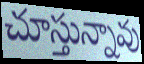
చూస్తున్నావు